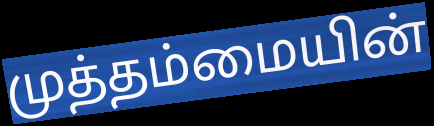
முத்தம்மையின்